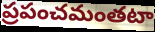
ప్రపంచమంతటా